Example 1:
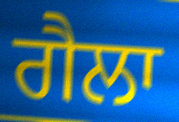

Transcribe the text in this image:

ਗੈਲਾ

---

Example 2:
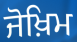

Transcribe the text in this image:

ਜੋਖ਼ਿਮ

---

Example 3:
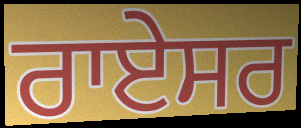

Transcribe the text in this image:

ਰਾਏਸਰ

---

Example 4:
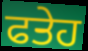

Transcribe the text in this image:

ਫਤੇਹ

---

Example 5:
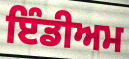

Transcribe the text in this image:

ਇੰਡੀਅਮ